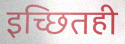
इच्छितही